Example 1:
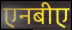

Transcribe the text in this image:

एनबीए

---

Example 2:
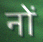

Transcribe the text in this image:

नों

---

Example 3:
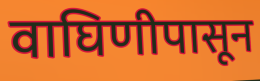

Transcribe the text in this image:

वाघिणीपासून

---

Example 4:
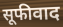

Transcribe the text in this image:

सूफीवाद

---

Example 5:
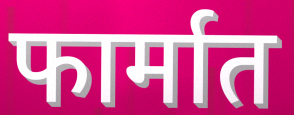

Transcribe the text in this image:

फार्मात